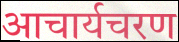
आचार्यचरण